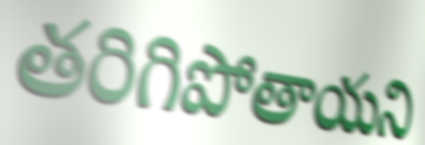
తరిగిపోతాయని